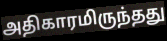
அதிகாரமிருந்தது